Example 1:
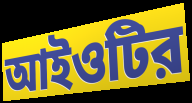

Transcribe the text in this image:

আইওটির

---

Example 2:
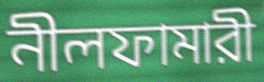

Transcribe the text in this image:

নীলফামারী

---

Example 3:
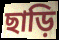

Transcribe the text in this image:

ছাড়ি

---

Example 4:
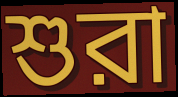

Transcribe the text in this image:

শুরা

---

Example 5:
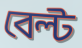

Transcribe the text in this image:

বেল্ট